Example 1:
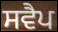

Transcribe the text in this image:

ਸਵੈਪ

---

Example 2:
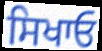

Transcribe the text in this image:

ਸਿਖਾਓ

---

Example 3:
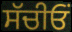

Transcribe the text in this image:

ਸੱਚੀਓਂ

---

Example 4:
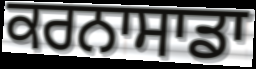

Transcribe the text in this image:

ਕਰਨਾਸਾਡਾ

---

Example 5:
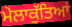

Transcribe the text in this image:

ਮੇਲਾਕੁੱਤਿਆਂ